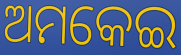
ଅମକେଇ